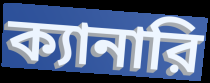
ক্যানারি